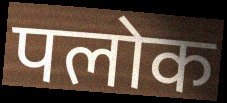
पलोक